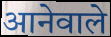
आनेवाले